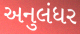
અનુલંધર